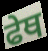
ਫੇਥ